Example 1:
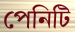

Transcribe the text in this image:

পেনিটি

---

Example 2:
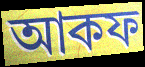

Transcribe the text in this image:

আকফ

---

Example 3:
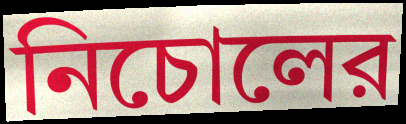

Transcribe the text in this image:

নিচোলের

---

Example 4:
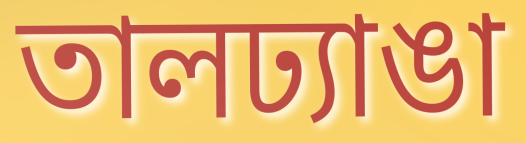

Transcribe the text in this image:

তালঢ্যাঙা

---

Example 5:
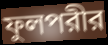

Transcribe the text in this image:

ফুলপরীর